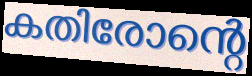
കതിരോന്റെ